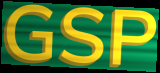
GSP